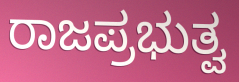
ರಾಜಪ್ರಭುತ್ವ